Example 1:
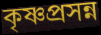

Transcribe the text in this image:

কৃষ্ণপ্রসন্ন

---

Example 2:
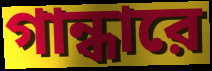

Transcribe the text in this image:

গান্ধারে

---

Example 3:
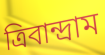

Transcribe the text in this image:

ত্রিবান্দ্রাম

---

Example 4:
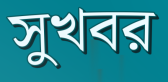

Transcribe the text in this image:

সুখবর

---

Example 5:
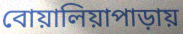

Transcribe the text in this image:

বোয়ালিয়াপাড়ায়